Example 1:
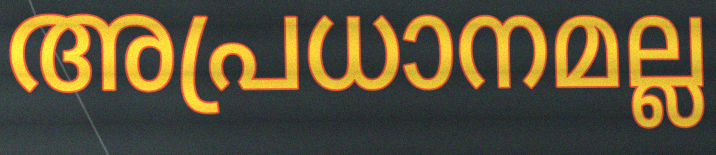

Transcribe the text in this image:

അപ്രധാനമല്ല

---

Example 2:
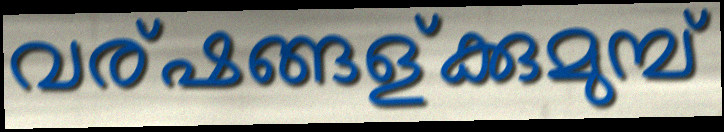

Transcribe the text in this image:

വര്ഷങ്ങള്ക്കുമുമ്പ്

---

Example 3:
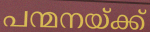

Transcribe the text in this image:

പന്മനയ്ക്ക്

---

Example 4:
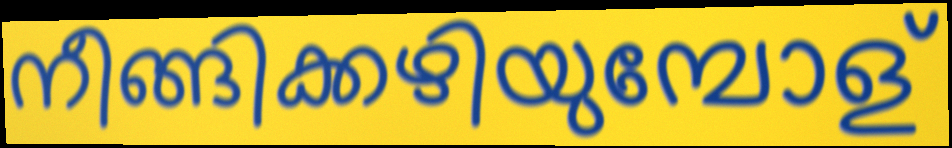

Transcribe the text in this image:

നീങ്ങിക്കഴിയുമ്പോള്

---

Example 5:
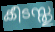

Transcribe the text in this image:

കീടസ്തു